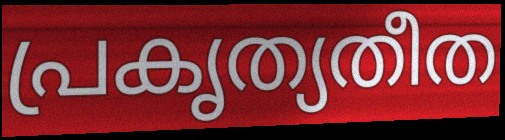
പ്രകൃത്യതീത